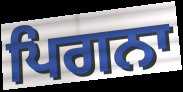
ਪਿਗਨਾ